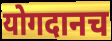
योगदानच